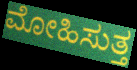
ಮೋಹಿಸುತ್ತ